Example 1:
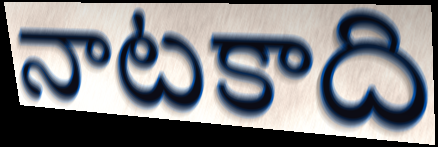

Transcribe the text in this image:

నాటకాది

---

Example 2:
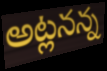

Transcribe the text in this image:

అట్లనన్న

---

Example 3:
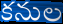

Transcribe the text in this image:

కనుల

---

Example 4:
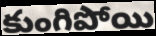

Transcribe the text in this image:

కుంగిపోయి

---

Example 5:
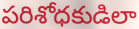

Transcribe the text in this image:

పరిశోధకుడిలా